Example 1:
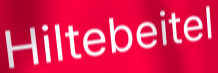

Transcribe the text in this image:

Hiltebeitel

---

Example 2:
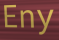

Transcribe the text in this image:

Eny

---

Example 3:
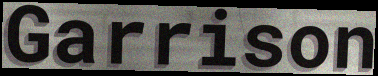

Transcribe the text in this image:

Garrison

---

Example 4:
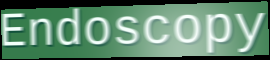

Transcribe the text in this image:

Endoscopy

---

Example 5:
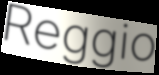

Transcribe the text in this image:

Reggio